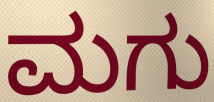
ಮಗು